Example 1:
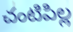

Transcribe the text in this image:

చంటిపిల్ల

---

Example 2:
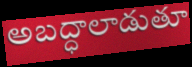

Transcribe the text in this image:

అబద్ధాలాడుతూ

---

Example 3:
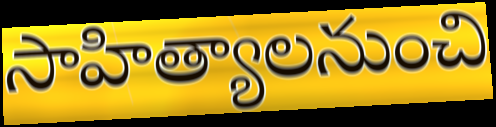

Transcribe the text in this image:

సాహిత్యాలనుంచి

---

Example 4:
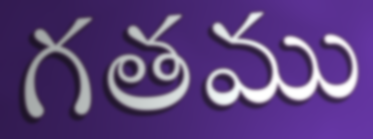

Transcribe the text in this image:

గతము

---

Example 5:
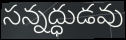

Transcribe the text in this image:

సన్నద్ధుడవు